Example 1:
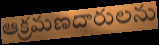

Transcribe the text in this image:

ఆక్రమణదారులను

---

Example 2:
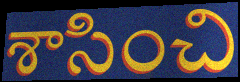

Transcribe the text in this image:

శాసించి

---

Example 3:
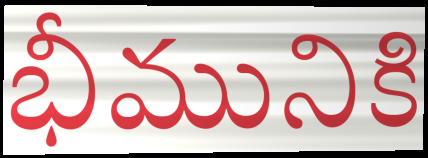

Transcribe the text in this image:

భీమునికి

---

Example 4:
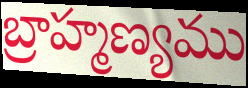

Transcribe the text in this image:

బ్రాహ్మణ్యము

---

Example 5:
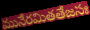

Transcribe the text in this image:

మునేరమితతేజసః